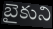
బైకుని